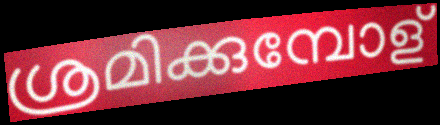
ശ്രമിക്കുമ്പോള്